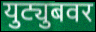
युट्युबवर